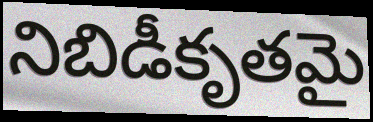
నిబిడీకృతమై